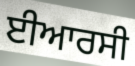
ਈਆਰਸੀ